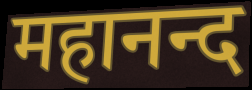
महानन्द